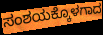
ಸಂಶಯಕ್ಕೊಳಗಾದ